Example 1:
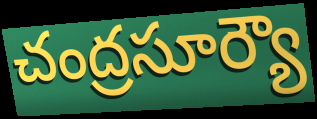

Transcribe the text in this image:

చంద్రసూర్యౌ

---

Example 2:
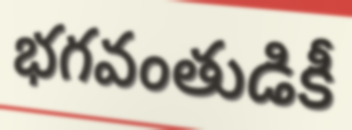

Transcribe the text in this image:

భగవంతుడికీ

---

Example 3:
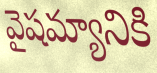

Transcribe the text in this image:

వైషమ్యానికి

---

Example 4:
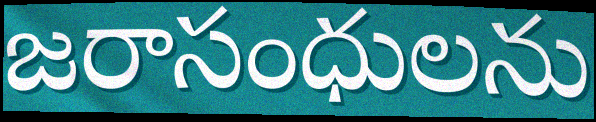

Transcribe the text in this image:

జరాసంధులను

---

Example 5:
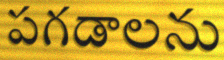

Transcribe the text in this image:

పగడాలను